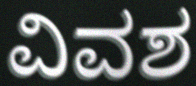
ವಿವಶ